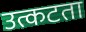
उत्कटता